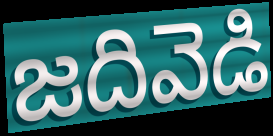
జదివెడి